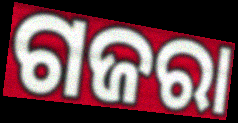
ଗଜରା